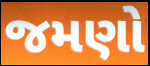
જમણો